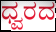
ಧ್ವರದ